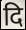
दि